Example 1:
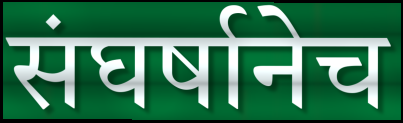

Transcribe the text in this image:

संघर्षानेच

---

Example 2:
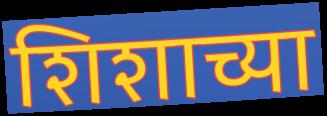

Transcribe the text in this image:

शिशाच्या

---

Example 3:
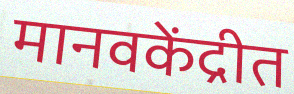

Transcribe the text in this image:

मानवकेंद्रीत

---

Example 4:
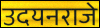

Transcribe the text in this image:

उदयनराजे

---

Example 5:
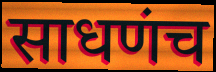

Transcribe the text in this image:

साधणंच